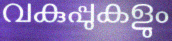
വകുപ്പുകളും